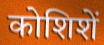
कोशिशें